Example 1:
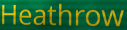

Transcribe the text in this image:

Heathrow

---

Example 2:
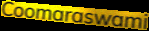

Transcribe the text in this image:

Coomaraswami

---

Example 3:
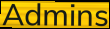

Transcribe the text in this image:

Admins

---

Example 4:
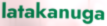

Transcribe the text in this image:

latakanuga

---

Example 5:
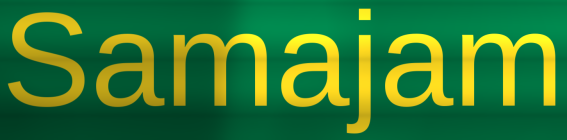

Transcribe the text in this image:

Samajam